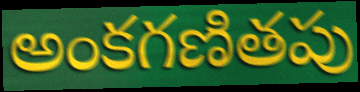
అంకగణితపు